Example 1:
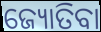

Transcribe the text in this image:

ଜ୍ୟୋତିବା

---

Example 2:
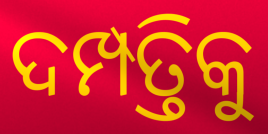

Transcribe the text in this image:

ଦମ୍ପତ୍ତିକୁ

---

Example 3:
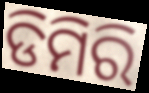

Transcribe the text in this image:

ଡିମିରି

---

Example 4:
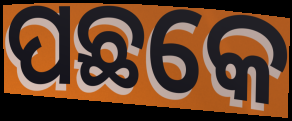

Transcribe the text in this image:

ପଛକେ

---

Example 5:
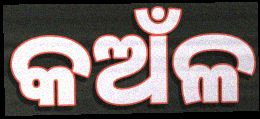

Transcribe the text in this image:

କଅଁଳ